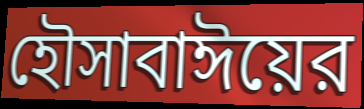
হৌসাবাঈয়ের